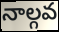
నాల్గవ